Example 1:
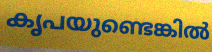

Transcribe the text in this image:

കൃപയുണ്ടെങ്കിൽ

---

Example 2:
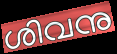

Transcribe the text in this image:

ശിവനു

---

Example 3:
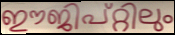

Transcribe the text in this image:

ഈജിപ്റ്റിലും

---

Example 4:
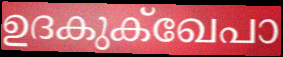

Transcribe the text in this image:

ഉദകുക്ഖേപാ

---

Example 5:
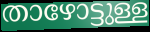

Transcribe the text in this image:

താഴോട്ടുള്ള